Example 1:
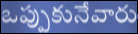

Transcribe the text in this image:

ఒప్పుకునేవారు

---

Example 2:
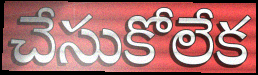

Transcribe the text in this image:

చేసుకోలేక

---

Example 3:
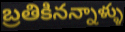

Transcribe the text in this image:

బ్రతికినన్నాళ్ళు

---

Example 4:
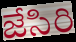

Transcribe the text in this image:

జేసిరి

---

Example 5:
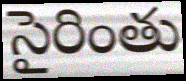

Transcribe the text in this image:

సైరింతు